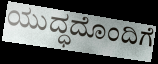
ಯುದ್ಧದೊಂದಿಗೆ